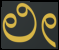
ಲೀ